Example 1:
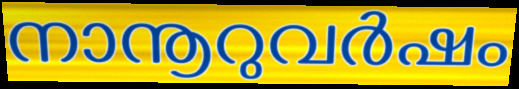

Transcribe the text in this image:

നാനൂറുവർഷം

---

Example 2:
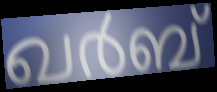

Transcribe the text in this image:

ഖർബ്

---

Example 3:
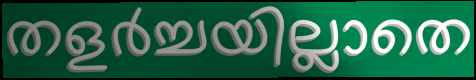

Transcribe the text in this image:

തളർച്ചയില്ലാതെ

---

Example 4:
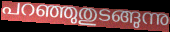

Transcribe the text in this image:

പറഞ്ഞുതുടങ്ങുന്നു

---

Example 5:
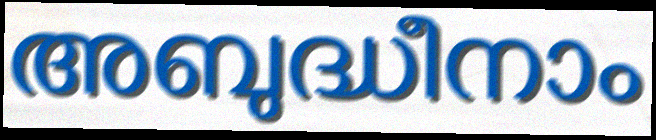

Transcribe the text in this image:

അബുദ്ധീനാം